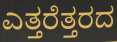
ಎತ್ತರೆತ್ತರದ